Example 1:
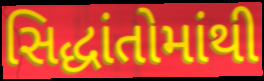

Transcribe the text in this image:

સિદ્ધાંતોમાંથી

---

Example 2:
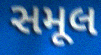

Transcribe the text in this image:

સમૂલ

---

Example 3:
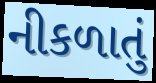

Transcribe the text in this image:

નીકળાતું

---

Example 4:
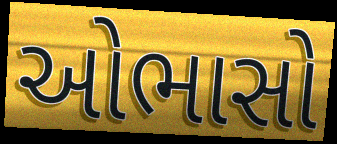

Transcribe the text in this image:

ઓભાસો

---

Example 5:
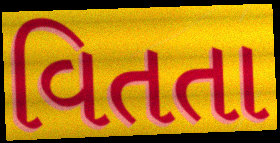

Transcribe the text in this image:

વિતતા